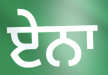
ਏਨਾ